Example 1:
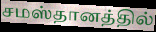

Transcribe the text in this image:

சமஸ்தானத்தில்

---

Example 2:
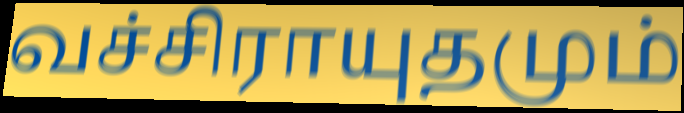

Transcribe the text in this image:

வச்சிராயுதமும்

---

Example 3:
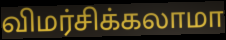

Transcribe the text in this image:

விமர்சிக்கலாமா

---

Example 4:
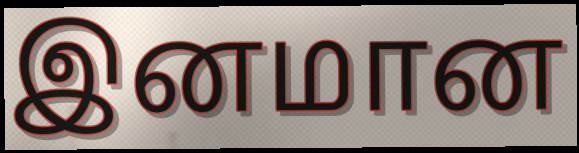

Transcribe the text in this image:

இனமான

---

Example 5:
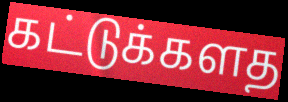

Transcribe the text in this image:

கட்டுக்களத